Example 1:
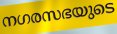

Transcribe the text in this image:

നഗരസഭയുടെ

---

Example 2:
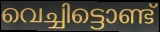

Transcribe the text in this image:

വെച്ചിട്ടൊണ്ട്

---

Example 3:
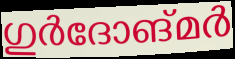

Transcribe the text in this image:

ഗുർദോങ്മർ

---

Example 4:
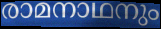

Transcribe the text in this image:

രാമനാഥനും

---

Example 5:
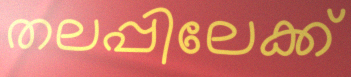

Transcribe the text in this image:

തലപ്പിലേക്ക്